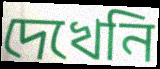
দেখেনি